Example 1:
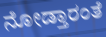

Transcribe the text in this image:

ನೋಡ್ತಾರಂತೆ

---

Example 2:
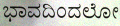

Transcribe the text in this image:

ಭಾವದಿಂದಲೋ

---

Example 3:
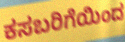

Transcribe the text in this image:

ಕಸಬರಿಗೆಯಿಂದ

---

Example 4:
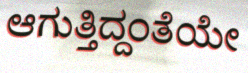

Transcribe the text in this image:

ಆಗುತ್ತಿದ್ದಂತೆಯೇ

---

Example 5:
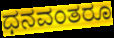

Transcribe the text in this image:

ಧನವಂತರೂ